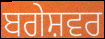
ਬਗੇਸ਼ਵਰ